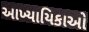
આખ્યાયિકાઓ